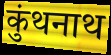
कुंथनाथ